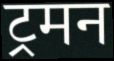
ट्रमन